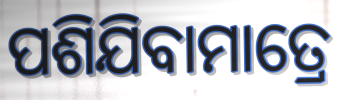
ପଶିଯିବାମାତ୍ରେ